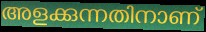
അളക്കുന്നതിനാണ്